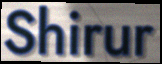
Shirur